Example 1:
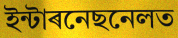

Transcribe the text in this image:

ইন্টাৰনেছনেলত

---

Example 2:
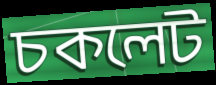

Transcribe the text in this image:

চকলেট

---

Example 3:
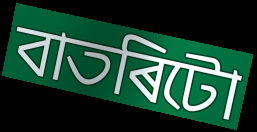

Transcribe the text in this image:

বাতৰিটো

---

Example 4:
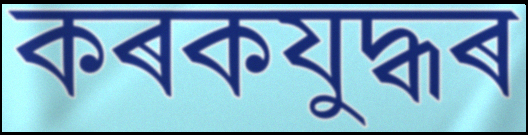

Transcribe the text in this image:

কৰকযুদ্ধৰ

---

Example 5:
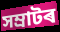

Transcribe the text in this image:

সম্ৰাটৰ